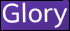
Glory